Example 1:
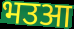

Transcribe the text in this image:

भउआ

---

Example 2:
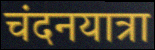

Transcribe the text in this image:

चंदनयात्रा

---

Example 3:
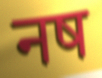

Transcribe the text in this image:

नष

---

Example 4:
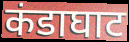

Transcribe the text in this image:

कंडाघाट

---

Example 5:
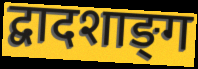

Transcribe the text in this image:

द्वादशाङ्ग